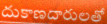
దుకాణదారులతో